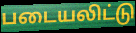
படையலிட்டு